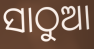
ସାଠୁଆ